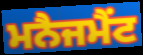
ਮਨੈਜਮੈਂਟ